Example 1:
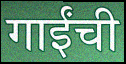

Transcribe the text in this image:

गाईंची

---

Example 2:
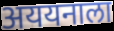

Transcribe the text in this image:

अययनाला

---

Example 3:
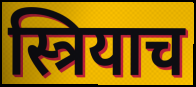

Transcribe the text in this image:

स्त्रियाच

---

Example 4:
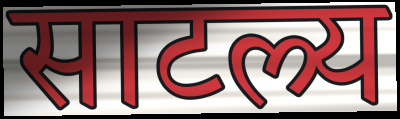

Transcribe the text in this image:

साटल्य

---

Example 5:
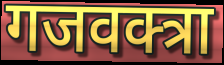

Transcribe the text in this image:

गजवक्त्रा